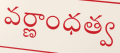
వర్ణాంధత్వ